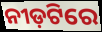
ନୀଡ଼ଟିରେ